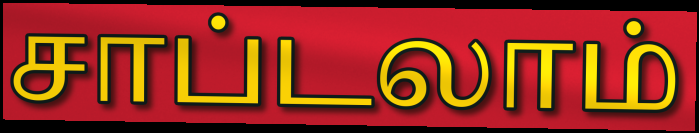
சாப்டலாம்